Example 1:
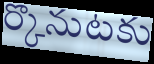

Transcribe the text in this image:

ర్కొనుటకు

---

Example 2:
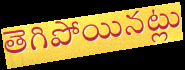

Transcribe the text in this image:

తెగిపోయినట్లు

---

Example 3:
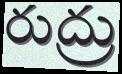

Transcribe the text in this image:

రుద్రు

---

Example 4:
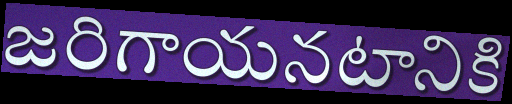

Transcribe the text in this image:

జరిగాయనటానికి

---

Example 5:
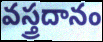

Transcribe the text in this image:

వస్త్రదానం